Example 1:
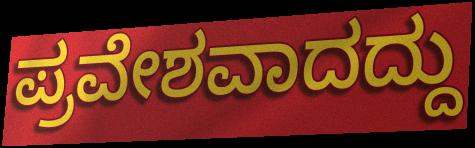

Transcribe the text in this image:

ಪ್ರವೇಶವಾದದ್ದು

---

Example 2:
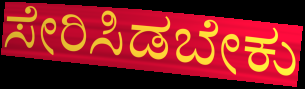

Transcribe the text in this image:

ಸೇರಿಸಿಡಬೇಕು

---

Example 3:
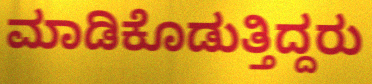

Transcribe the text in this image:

ಮಾಡಿಕೊಡುತ್ತಿದ್ದರು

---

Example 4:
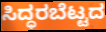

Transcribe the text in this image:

ಸಿದ್ಧರಬೆಟ್ಟದ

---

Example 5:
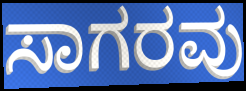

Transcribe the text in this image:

ಸಾಗರವು